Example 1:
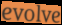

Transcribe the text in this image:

evolve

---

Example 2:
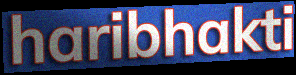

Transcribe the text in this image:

haribhakti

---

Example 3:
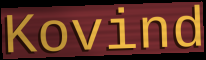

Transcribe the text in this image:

Kovind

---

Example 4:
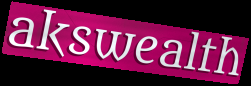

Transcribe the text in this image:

akswealth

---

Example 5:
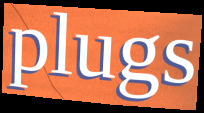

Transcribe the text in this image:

plugs